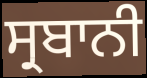
ਸ੍ਰਬਾਨੀ